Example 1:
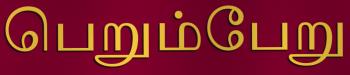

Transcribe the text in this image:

பெறும்பேறு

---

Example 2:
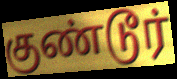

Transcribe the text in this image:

குண்டூர்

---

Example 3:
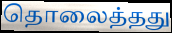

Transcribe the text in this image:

தொலைத்தது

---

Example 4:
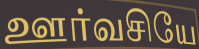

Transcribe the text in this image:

ஊர்வசியே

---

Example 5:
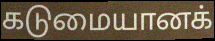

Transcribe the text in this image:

கடுமையானக்